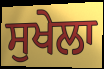
ਸੁਖੇਲਾ